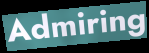
Admiring